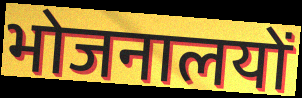
भोजनालयों